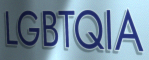
LGBTQIA